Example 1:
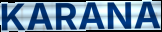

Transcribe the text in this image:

KARANA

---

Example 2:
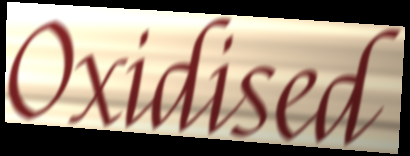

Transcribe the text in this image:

Oxidised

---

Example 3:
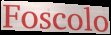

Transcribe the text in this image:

Foscolo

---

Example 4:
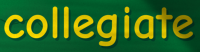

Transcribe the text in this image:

collegiate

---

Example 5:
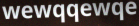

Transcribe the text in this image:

wewqqewqe